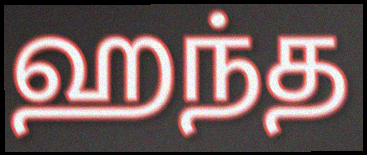
ஹந்த